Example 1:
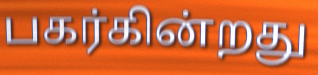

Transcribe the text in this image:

பகர்கின்றது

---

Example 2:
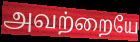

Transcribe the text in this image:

அவற்றையே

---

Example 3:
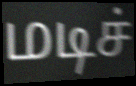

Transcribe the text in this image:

மடிச்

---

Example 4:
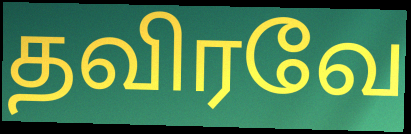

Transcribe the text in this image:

தவிரவே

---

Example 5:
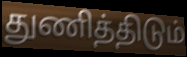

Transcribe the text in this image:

துணித்திடும்